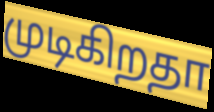
முடிகிறதா